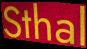
Sthal